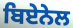
ਬਿਏਨੇਲ